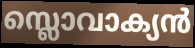
സ്ലൊവാക്യൻ